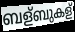
ബള്ബുകള്